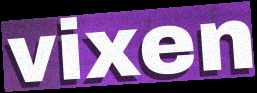
vixen